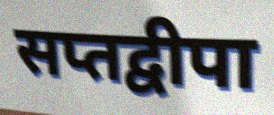
सप्तद्वीपा